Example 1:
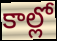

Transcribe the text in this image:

కాల్లో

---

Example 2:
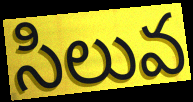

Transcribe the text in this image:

సిలువ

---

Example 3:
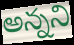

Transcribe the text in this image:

అన్నని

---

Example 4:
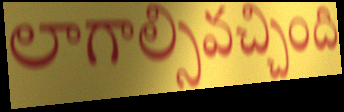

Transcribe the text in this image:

లాగాల్సివచ్చింది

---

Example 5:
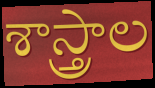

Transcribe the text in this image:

శాస్త్రాల